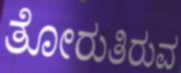
ತೋರುತಿರುವ